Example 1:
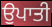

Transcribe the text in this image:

ਉਪਾਤੀ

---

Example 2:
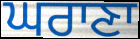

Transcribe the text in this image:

ਘਰਾਣਾ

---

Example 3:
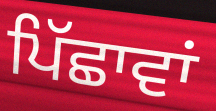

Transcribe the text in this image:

ਪਿੱਛਾਵਾਂ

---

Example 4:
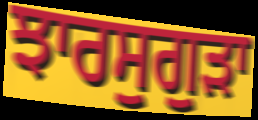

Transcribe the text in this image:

ਝਾਰਸੁਗੁੜਾ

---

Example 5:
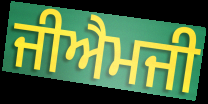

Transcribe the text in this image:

ਜੀਐਮਜੀ